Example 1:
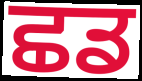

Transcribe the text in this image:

ਛਡ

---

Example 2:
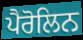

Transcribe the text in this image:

ਪੈਰੋਲਿਨ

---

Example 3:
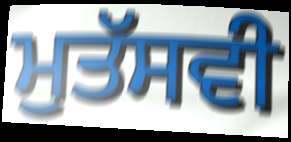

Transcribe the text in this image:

ਮੁਤੱਸਵੀ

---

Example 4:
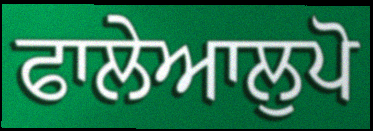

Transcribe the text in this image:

ਫਾਲੇਆਲੁਪੋ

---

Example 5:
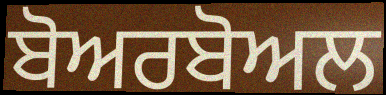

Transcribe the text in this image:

ਬੋਅਰਬੋਅਲ